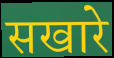
सखारे